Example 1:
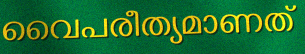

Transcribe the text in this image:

വൈപരീത്യമാണത്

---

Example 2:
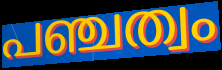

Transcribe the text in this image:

പഞ്ചത്വം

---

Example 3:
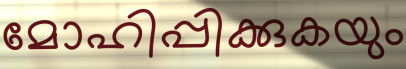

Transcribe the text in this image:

മോഹിപ്പിക്കുകയും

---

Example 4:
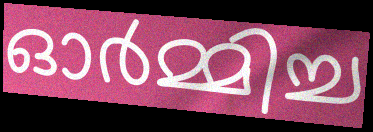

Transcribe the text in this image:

ഓർമ്മിച്ച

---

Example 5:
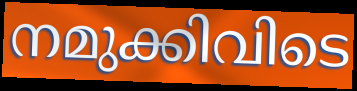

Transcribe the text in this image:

നമുക്കിവിടെ